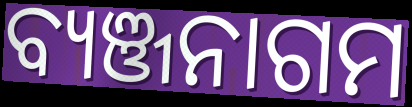
ବ୍ୟଞ୍ଜନାଗମ